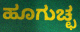
ಹೂಗುಚ್ಛ